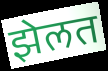
झेलत